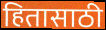
हितासाठी